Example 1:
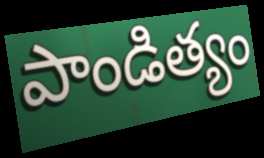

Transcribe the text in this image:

పాండిత్యం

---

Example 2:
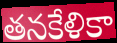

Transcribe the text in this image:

తనకేళికా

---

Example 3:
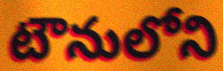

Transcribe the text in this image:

టౌనులోని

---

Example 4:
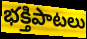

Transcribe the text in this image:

భక్తిపాటలు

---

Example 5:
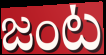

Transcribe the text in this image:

జంట